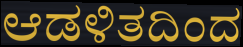
ಆಡಳಿತದಿಂದ